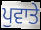
ਪੁਵਾਤੇ